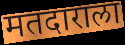
मतदाराला